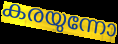
കരയുന്നോ